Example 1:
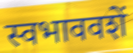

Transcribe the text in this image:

स्वभाववशें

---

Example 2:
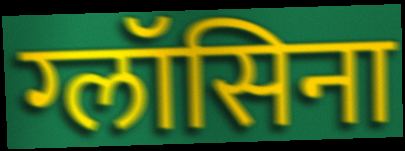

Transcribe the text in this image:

ग्लॉसिना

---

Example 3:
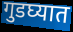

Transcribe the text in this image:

गुडघ्यात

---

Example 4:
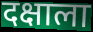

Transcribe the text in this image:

दक्षाला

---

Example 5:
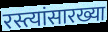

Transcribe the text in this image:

रस्त्यांसारख्या